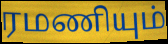
ரமணியும்